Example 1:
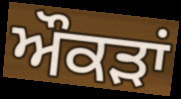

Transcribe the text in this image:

ਔਕਡ਼ਾਂ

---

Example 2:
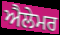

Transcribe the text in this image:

ਐਲੇਮਰ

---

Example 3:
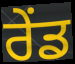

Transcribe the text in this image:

ਰੇਂਡ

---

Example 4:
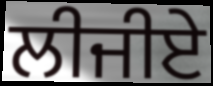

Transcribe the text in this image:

ਲੀਜੀਏ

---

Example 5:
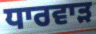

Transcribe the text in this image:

ਧਾਰਵਾੜ